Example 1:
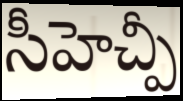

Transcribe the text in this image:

సీహెచ్పీ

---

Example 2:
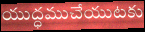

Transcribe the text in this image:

యుద్ధముచేయుటకు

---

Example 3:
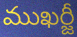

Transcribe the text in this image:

ముఖర్జీ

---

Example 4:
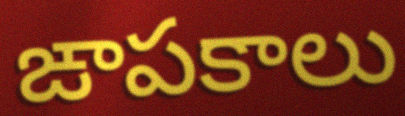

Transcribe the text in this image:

ఙాపకాలు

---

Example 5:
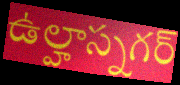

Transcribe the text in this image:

ఉల్హాస్నగర్